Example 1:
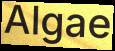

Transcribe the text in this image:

Algae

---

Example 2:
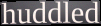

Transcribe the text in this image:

huddled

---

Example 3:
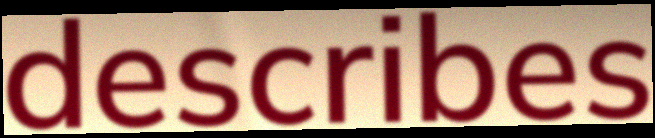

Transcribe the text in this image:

describes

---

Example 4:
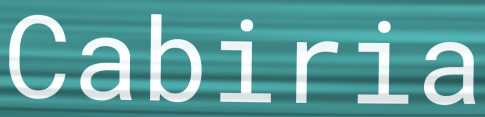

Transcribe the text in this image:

Cabiria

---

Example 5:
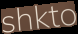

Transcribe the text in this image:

shkto